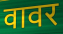
वावर